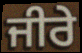
ਜੀਰੇ